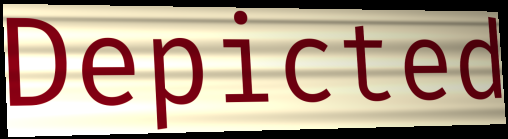
Depicted